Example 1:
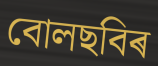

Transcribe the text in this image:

বোলছবিৰ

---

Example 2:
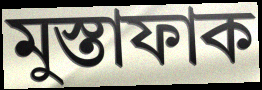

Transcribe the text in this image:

মুস্তাফাক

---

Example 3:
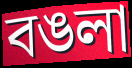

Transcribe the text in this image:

বঙলা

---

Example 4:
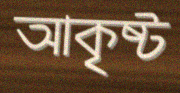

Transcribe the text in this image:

আকৃষ্ট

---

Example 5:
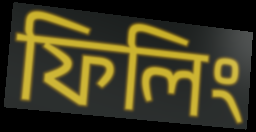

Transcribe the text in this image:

ফিলিং